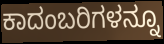
ಕಾದಂಬರಿಗಳನ್ನೂ